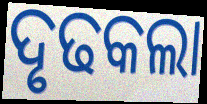
ଦୃଢକଲା